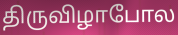
திருவிழாபோல